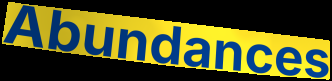
Abundances